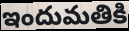
ఇందుమతికి